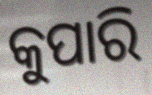
କୁପାରି